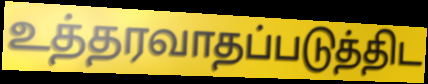
உத்தரவாதப்படுத்திட